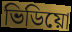
ভিডিয়ো